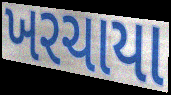
ખરચાયા